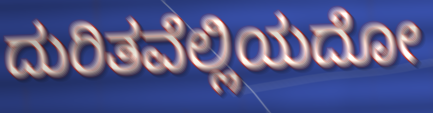
ದುರಿತವೆಲ್ಲಿಯದೋ